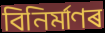
বিনিৰ্মাণৰ